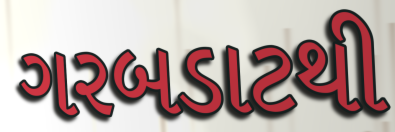
ગરબડાટથી